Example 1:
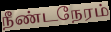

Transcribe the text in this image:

நீண்டநேரம்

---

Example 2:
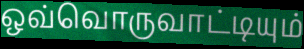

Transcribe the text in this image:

ஒவ்வொருவாட்டியும்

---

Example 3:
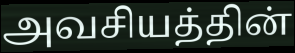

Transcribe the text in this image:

அவசியத்தின்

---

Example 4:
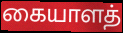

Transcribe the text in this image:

கையாளத்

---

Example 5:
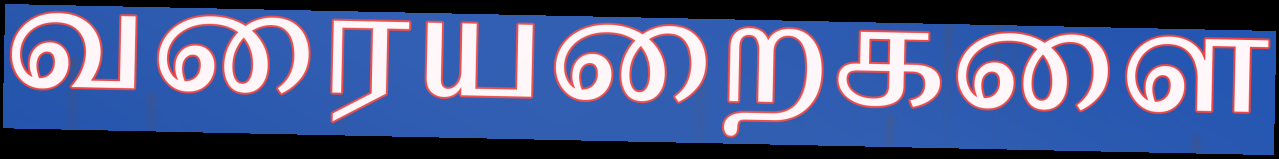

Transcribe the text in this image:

வரையறைகளை